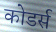
कोडर्स